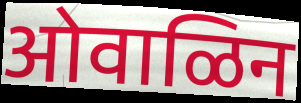
ओवाळिन